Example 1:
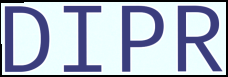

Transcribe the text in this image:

DIPR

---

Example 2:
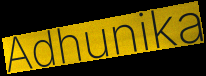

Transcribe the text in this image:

Adhunika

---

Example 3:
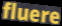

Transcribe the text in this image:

fluere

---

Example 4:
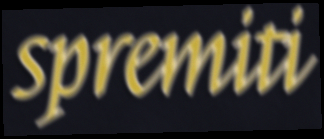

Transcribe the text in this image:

spremiti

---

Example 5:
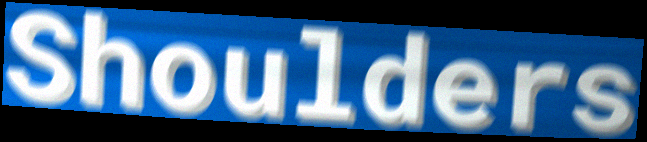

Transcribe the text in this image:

Shoulders